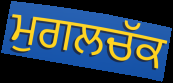
ਮੁਗਲਚੱਕ